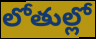
లోతుల్లో